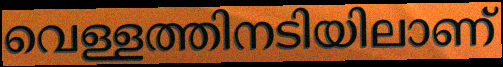
വെള്ളത്തിനടിയിലാണ്